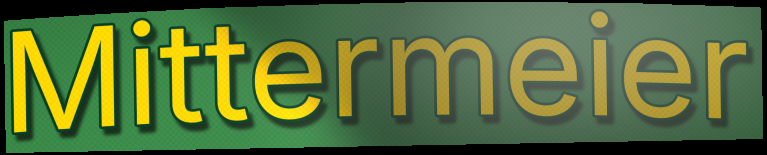
Mittermeier